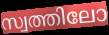
സ്വത്തിലോ